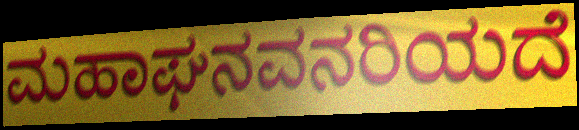
ಮಹಾಘನವನರಿಯದೆ